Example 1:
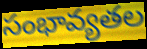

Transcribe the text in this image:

సంభావ్యతల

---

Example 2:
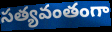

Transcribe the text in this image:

సత్యవంతంగా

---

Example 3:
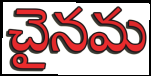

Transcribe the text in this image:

చైనమ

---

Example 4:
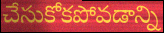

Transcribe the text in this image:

చేసుకోకపోవడాన్ని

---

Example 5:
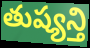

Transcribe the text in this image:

తుష్యన్తి